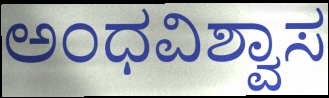
ಅಂಧವಿಶ್ವಾಸ